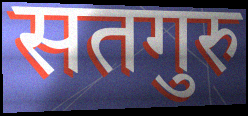
सतगुरु